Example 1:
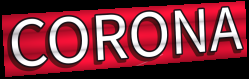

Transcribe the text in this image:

CORONA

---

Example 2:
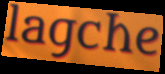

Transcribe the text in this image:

lagche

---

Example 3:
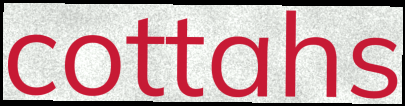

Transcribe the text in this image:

cottahs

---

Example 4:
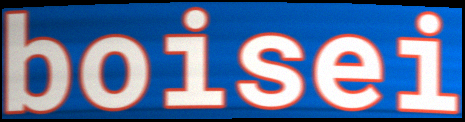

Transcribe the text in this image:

boisei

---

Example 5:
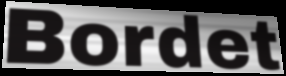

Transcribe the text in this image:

Bordet